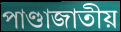
পাণ্ডাজাতীয়